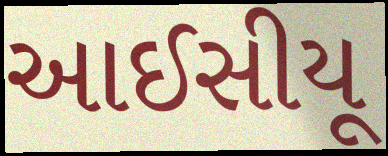
આઈસીયૂ